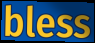
bless